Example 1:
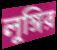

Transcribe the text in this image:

লুঙ্গির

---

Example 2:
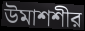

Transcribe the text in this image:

উমাশশীর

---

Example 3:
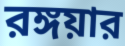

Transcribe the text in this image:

রঙ্গয়ার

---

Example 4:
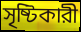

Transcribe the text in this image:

সৃষ্টিকারী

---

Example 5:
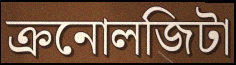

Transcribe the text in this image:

ক্রনোলজিটা